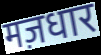
मज़धार